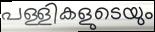
പള്ളികളുടെയും